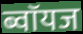
ब्वॉयज